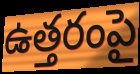
ఉత్తరంపై